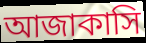
আজাকাসি